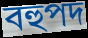
বহুপদ